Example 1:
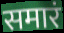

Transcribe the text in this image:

समारं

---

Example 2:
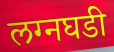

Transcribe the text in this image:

लग्नघडी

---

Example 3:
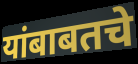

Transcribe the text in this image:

यांबाबतचे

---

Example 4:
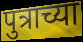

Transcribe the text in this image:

पुत्राच्या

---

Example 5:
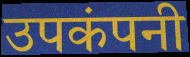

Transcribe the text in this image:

उपकंपनी